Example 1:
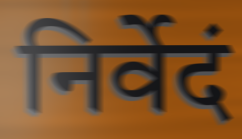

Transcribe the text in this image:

निर्वेदं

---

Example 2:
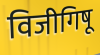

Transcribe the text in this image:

विजीगिषू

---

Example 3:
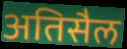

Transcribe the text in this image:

अतिसैल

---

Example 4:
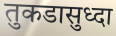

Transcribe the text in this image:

तुकडासुध्दा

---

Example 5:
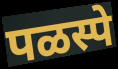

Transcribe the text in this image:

पळस्पे